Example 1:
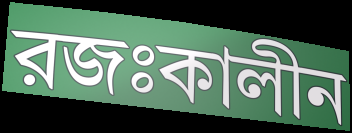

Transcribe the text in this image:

রজঃকালীন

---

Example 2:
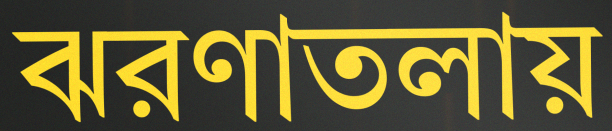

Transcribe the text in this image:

ঝরণাতলায়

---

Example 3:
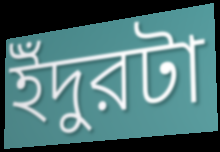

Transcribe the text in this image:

ইঁদুরটা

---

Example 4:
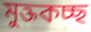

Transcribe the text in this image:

মুক্তকচ্ছ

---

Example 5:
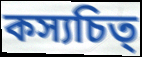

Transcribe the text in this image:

কস্যচিত্